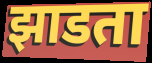
झाडता